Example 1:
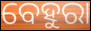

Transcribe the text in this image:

ବେହୁରା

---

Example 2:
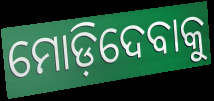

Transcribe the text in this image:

ମୋଡ଼ିଦେବାକୁ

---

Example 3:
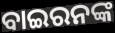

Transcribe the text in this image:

ବାଇରନଙ୍କ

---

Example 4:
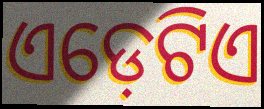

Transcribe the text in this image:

ଏଡ଼େଟିଏ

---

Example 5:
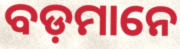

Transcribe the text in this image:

ବଡ଼ମାନେ